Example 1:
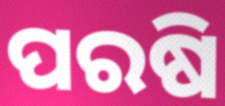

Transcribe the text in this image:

ପରଷି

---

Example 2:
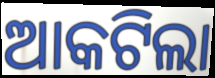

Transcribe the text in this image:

ଆକଟିଲା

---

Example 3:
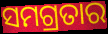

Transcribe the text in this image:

ସମଗ୍ରତାର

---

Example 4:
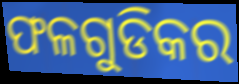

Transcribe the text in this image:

ଫଳଗୁଡିକର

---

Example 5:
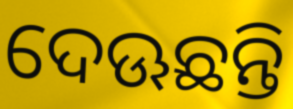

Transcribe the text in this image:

ଦେଊଛନ୍ତି